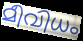
മീവിധം